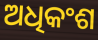
ଅଧିକଂଶ